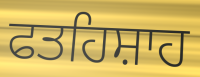
ਫਤਹਿਸ਼ਾਹ